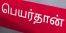
பெயர்தான்